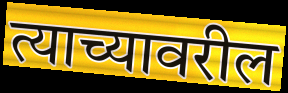
त्याच्यावरील